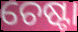
ଚେଷ୍ଟା